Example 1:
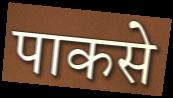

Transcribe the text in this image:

पाकसे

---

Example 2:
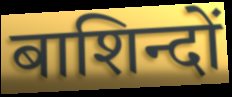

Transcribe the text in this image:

बाशिन्दों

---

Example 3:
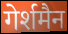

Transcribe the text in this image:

गेर्शमैन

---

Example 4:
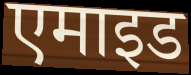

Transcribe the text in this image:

एमाइड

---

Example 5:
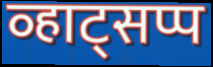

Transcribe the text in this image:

व्हाट्सप्प